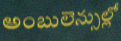
అంబులెన్సుల్లో